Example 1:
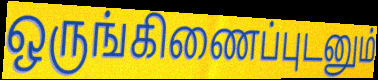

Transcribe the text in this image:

ஒருங்கிணைப்புடனும்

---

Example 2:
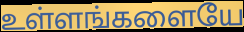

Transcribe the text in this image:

உள்ளங்களையே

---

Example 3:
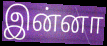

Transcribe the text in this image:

இன்னா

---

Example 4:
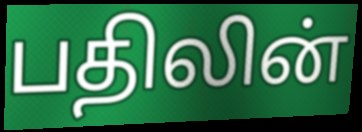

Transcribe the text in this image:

பதிலின்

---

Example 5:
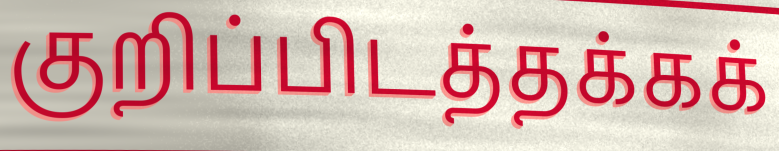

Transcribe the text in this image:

குறிப்பிடத்தக்கக்